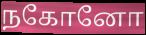
நகோனோ